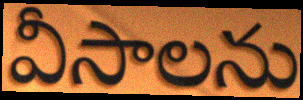
వీసాలను